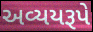
અવ્યયરૂપે